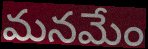
మనమేం